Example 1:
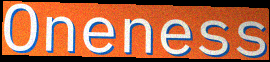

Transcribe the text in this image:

Oneness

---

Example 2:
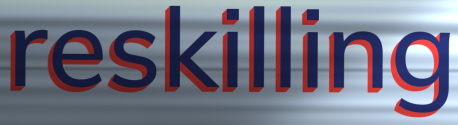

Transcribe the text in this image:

reskilling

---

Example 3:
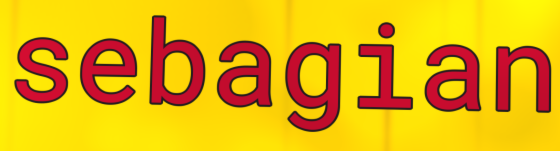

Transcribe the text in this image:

sebagian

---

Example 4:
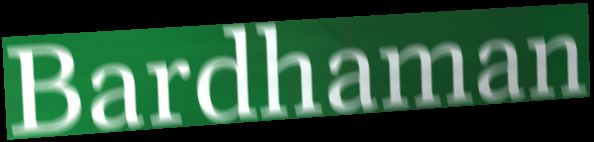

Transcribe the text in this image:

Bardhaman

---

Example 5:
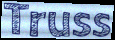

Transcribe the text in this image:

Truss